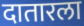
दातारला